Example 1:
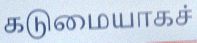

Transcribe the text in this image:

கடுமையாகச்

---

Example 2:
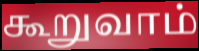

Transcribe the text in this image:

கூறுவாம்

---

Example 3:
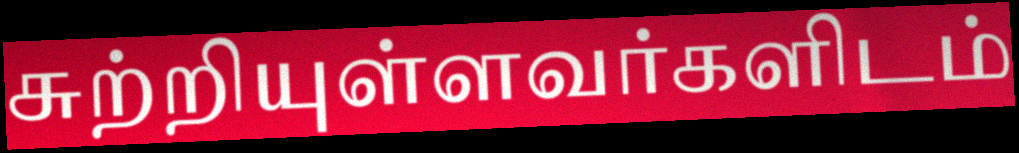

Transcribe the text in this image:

சுற்றியுள்ளவர்களிடம்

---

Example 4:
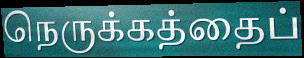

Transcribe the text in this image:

நெருக்கத்தைப்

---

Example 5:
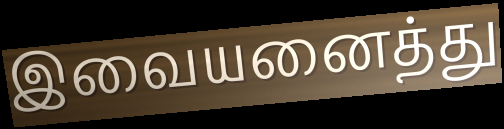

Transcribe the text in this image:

இவையனைத்து